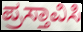
ಪ್ರಸ್ತಾವಿಸಿ